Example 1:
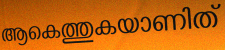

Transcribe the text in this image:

ആകെത്തുകയാണിത്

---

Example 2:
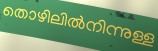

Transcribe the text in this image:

തൊഴിലിൽനിന്നുള്ള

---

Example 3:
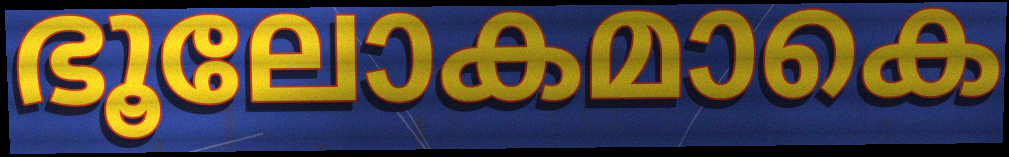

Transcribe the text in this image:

ഭൂലോകമാകെ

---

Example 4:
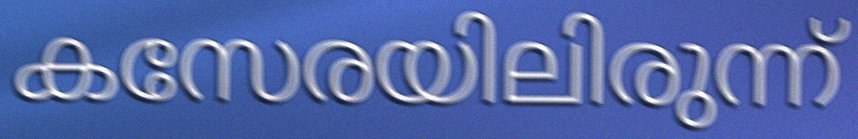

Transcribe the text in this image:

കസേരയിലിരുന്ന്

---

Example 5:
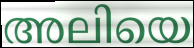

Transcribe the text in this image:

അലിയെ